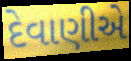
દેવાણીએ